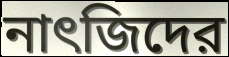
নাৎজিদের